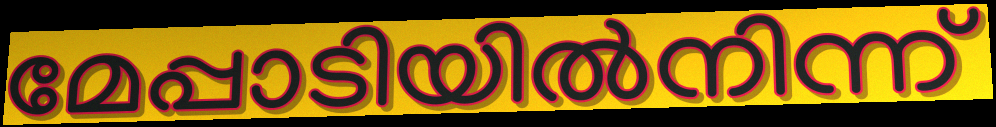
മേപ്പാടിയിൽനിന്ന്